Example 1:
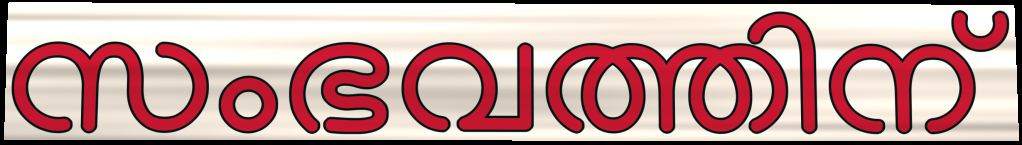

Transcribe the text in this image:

സംഭവത്തിന്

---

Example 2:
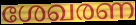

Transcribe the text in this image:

ശേഖരണ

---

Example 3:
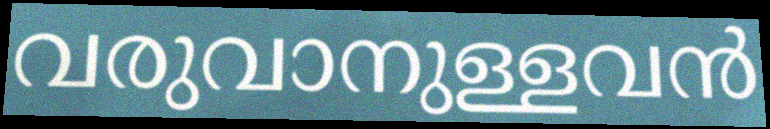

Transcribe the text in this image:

വരുവാനുള്ളവൻ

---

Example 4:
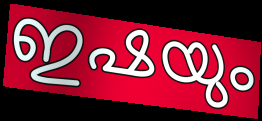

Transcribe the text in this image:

ഇഷയും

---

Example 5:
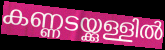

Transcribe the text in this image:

കണ്ണടയ്ക്കുള്ളിൽ